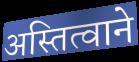
अस्तित्वाने